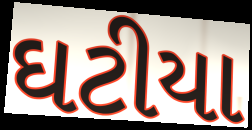
ઘટીયા